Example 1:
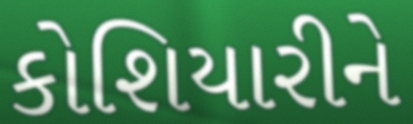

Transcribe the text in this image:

કોશિયારીને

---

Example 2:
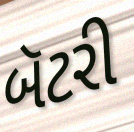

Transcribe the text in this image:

બૅટરી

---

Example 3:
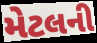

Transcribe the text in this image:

મેટલની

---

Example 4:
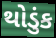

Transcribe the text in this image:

થોડુંક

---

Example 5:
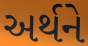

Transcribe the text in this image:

અર્થને